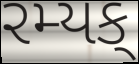
રમ્યક્